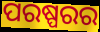
ପରଷ୍ପରର